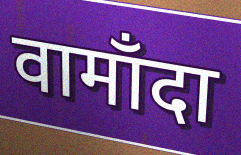
वामाँदा